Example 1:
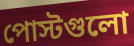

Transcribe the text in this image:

পোস্টগুলো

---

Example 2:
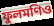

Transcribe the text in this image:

ফুলমণিও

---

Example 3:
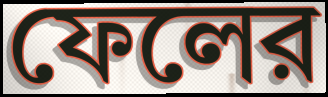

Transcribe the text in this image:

ফেলের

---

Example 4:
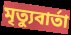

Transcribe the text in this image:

মৃত্যুবার্তা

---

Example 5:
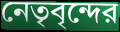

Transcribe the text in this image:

নেতৃবৃন্দের